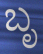
ಬೃ